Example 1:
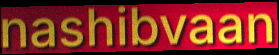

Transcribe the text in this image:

nashibvaan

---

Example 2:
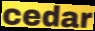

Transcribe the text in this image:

cedar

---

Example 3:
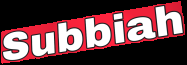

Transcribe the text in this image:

Subbiah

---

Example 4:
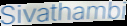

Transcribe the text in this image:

Sivathambi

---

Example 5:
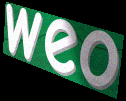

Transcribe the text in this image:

weo